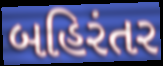
બહિરંતર